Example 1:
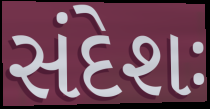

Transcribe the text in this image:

સંદેશઃ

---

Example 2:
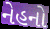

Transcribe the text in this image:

નેહનો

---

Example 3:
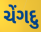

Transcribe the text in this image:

ચેંગદુ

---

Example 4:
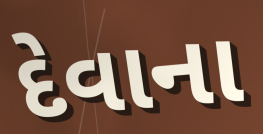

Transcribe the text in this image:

દેવાના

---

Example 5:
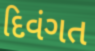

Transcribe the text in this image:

દિવંગત